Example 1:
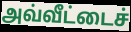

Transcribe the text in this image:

அவ்வீட்டைச்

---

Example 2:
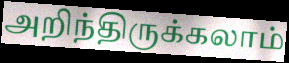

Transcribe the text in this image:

அறிந்திருக்கலாம்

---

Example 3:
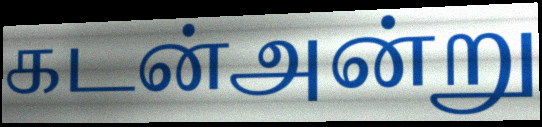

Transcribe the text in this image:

கடன்அன்று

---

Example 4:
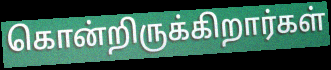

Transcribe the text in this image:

கொன்றிருக்கிறார்கள்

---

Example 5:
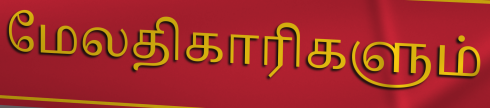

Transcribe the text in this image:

மேலதிகாரிகளும்